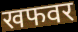
खफवर